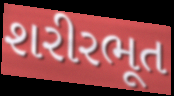
શરીરભૂત